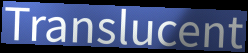
Translucent